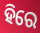
ହିରେ